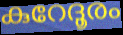
കുറേദൂരം